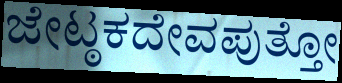
ಜೇಟ್ಠಕದೇವಪುತ್ತೋ